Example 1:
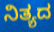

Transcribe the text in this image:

ನಿತ್ಯದ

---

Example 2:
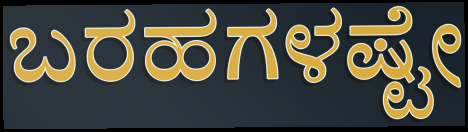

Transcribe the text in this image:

ಬರಹಗಳಷ್ಟೇ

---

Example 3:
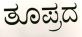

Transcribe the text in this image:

ತೂಪ್ರದ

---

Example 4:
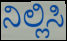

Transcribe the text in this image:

ನಿಲ್ಲಿಸಿ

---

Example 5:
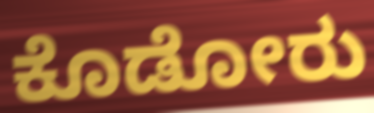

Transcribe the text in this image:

ಕೊಡೋರು